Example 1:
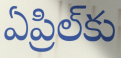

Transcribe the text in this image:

ఏప్రిల్‌కు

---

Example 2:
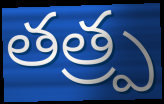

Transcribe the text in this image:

తత్ర్ప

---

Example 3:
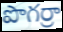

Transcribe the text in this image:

పొగర్రా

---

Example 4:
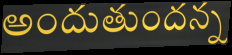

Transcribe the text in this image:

అందుతుందన్న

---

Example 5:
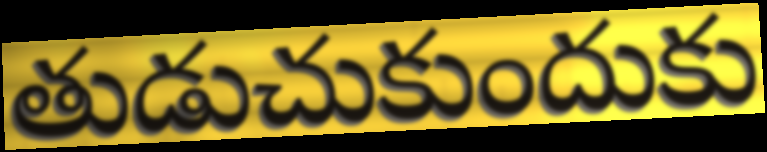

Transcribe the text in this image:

తుడుచుకుందుకు